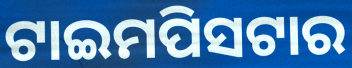
ଟାଇମପିସଟାର